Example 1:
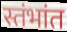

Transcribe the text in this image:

स्तंभांत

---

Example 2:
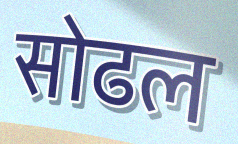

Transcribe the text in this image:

सोढल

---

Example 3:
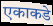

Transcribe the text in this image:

एकाकडे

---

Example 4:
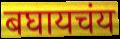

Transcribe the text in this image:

बघायचंय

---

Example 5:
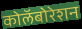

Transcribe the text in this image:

कोलॅबोरेशन